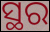
ସ୍ଥର